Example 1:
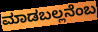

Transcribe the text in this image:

ಮಾಡಬಲ್ಲನೆಂಬ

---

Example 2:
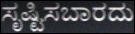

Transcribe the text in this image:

ಸೃಷ್ಟಿಸಬಾರದು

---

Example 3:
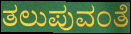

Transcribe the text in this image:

ತಲುಪುವಂತೆ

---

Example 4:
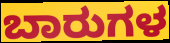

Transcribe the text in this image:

ಬಾರುಗಳ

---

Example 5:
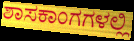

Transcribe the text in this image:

ಶಾಸಕಾಂಗಗಳಲ್ಲಿ